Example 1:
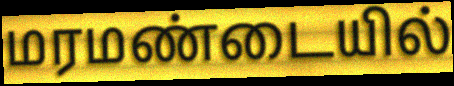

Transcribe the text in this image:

மரமண்டையில்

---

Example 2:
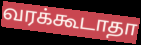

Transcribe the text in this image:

வரக்கூடாதா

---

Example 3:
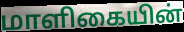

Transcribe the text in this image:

மாளிகையின்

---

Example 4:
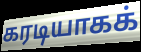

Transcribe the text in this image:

கரடியாகக்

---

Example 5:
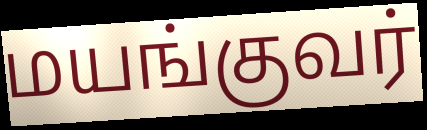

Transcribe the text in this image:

மயங்குவர்